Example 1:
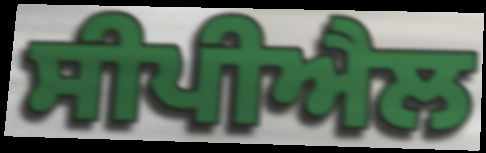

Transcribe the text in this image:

ਸੀਪੀਐਲ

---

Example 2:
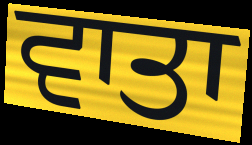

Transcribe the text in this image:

ਵਾਤਾ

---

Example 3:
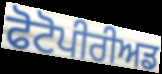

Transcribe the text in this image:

ਫੋਟੋਪੀਰੀਅਡ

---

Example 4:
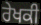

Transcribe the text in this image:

ਰੇਖਕੀ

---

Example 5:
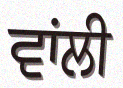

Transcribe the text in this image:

ਵਾਂਲੀ